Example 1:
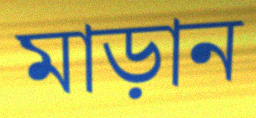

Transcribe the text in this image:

মাড়ান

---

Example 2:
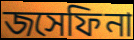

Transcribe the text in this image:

জসেফিনা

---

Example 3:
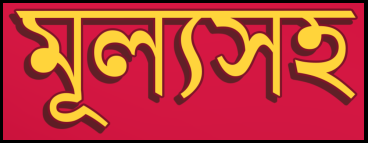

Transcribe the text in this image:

মূল্যসহ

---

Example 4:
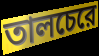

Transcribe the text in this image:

তালচেরে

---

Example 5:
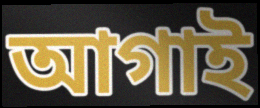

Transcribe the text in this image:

আগাই